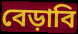
বেড়াবি